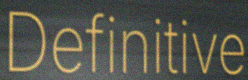
Definitive